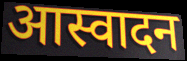
आस्वादन